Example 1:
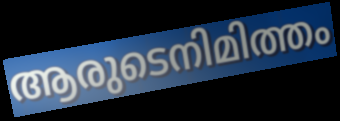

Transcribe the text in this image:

ആരുടെനിമിത്തം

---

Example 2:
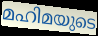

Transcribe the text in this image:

മഹിമയുടെ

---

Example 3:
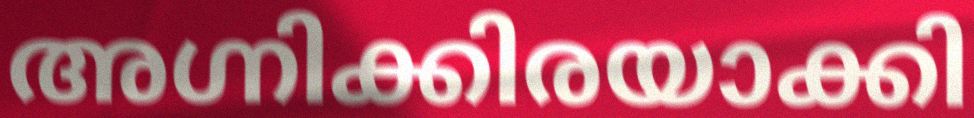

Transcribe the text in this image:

അഗ്നിക്കിരയാക്കി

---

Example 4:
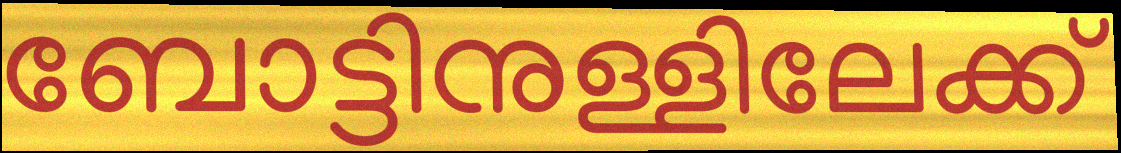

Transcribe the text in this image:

ബോട്ടിനുള്ളിലേക്ക്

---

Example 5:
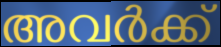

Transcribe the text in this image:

അവർക്ക്